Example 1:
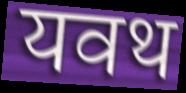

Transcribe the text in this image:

यवथ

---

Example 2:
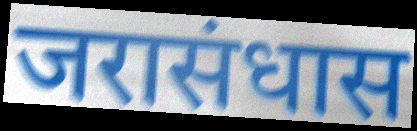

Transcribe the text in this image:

जरासंधास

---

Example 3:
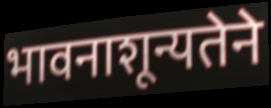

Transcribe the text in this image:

भावनाशून्यतेने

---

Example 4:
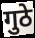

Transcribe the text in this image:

गुठे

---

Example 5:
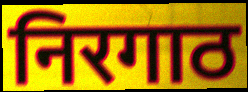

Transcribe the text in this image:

निरगाठ